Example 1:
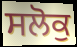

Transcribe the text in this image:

ਸਲੋਕੁ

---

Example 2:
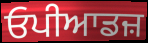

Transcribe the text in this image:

ਓਪੀਆਡਜ਼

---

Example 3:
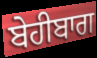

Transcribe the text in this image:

ਬੇਹੀਬਾਗ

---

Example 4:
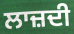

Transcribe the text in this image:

ਲਾਜ਼ਦੀ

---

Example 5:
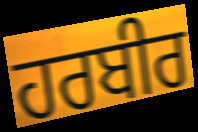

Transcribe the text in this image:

ਹਰਬੀਰ